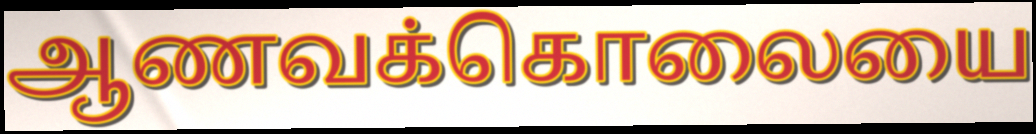
ஆணவக்கொலையை